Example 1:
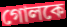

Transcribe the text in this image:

গোলকে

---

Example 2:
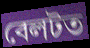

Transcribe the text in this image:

বেলটত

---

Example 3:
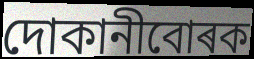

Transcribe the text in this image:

দোকানীবোৰক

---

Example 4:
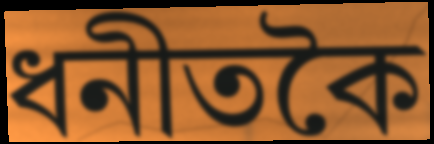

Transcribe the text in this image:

ধনীতকৈ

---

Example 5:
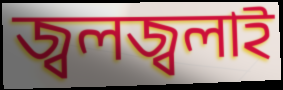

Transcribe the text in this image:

জ্বলজ্বলাই